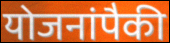
योजनांपैकी